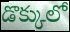
డొక్కులో